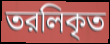
তরলিকৃত